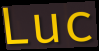
Luc